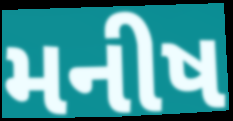
મનીષ